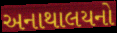
અનાથાલયનો